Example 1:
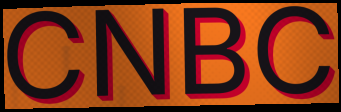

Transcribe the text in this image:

CNBC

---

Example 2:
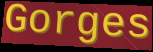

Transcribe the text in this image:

Gorges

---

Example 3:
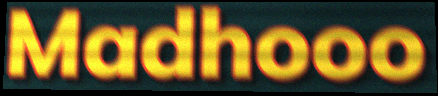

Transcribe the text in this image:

Madhooo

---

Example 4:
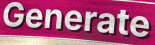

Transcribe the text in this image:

Generate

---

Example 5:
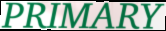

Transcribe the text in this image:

PRIMARY